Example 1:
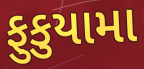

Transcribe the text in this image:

ફુકુયામા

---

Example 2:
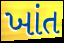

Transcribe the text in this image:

ખાંત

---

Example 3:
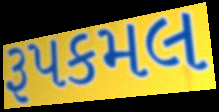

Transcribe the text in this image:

રૂપકમલ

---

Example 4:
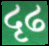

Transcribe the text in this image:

દૃઢ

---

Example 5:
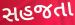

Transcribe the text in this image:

સહજતા